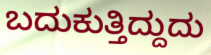
ಬದುಕುತ್ತಿದ್ದುದು